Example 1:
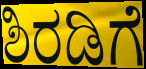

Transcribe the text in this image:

ಶಿರಡಿಗೆ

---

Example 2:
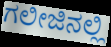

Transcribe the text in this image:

ಗಲೀಜಿನಲ್ಲಿ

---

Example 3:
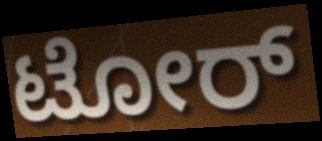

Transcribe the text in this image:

ಟೋರ್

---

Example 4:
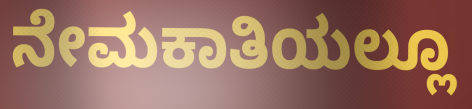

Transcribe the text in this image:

ನೇಮಕಾತಿಯಲ್ಲೂ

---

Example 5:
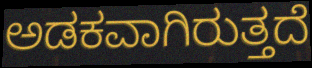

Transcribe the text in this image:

ಅಡಕವಾಗಿರುತ್ತದೆ